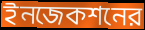
ইনজেকশনের